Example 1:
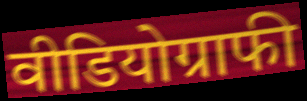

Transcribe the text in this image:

वीडियोग्राफी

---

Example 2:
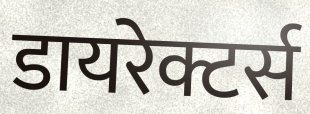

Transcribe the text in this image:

डायरेक्टर्स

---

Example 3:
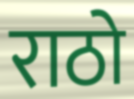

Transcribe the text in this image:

राठो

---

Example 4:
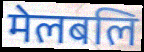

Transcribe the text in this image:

मेलबलि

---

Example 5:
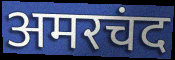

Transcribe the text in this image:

अमरचंद